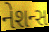
નેશન્સ